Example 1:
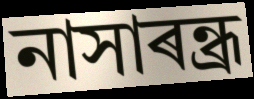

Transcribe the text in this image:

নাসাৰন্ধ্ৰ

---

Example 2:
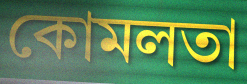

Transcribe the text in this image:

কোমলতা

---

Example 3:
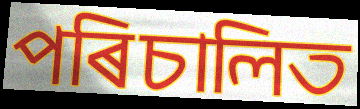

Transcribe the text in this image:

পৰিচালিত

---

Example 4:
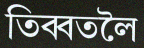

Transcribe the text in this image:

তিব্বতলৈ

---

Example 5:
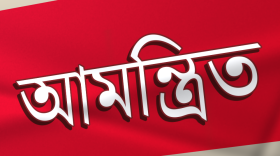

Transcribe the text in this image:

আমন্ত্ৰিত